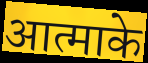
आत्माके